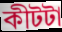
কীটটা